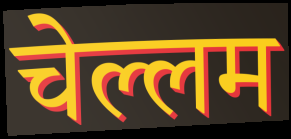
चेल्लम